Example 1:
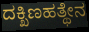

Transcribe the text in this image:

ದಕ್ಖಿಣಹತ್ಥೇನ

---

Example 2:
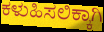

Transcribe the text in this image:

ಕಳುಹಿಸಲಿಕ್ಕಾಗಿ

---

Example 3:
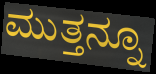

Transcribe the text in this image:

ಮುತ್ತನ್ನೂ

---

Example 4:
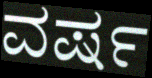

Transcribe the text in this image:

ವರ್ಷ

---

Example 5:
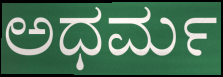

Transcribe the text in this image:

ಅಧರ್ಮ